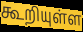
கூறியுள்ள